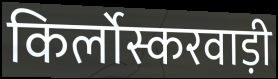
किर्लोस्करवाड़ी